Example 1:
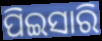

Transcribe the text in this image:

ପିଇସାରି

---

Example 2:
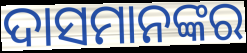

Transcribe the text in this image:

ଦାସମାନଙ୍କର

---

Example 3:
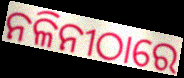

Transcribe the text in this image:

ନଳିନୀଠାରେ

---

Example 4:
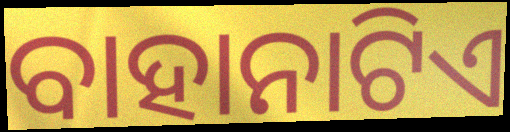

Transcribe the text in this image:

ବାହାନାଟିଏ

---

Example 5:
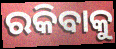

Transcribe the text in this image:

ରକିବାକୁ